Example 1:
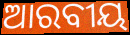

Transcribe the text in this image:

ଆରବୀୟ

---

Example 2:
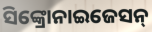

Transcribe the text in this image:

ସିଙ୍କ୍ରୋନାଇଜେସନ୍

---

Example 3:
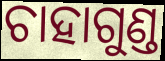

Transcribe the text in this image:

ଚାହାଗୁଣ୍ଡ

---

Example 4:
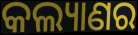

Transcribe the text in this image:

କଲ୍ୟାଣର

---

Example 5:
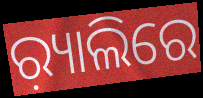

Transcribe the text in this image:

ର଼୍ୟାଲିରେ